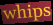
whips